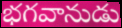
భగవానుడు